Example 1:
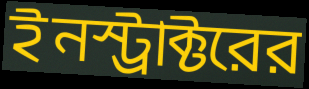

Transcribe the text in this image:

ইনস্ট্রাক্টরের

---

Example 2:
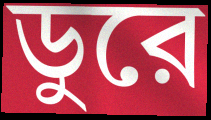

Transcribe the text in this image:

ডুরে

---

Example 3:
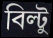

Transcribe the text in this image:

বিল্টু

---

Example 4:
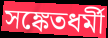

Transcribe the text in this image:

সঙ্কেতধর্মী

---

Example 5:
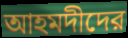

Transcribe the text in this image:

আহমদীদের